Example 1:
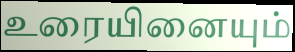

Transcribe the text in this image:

உரையினையும்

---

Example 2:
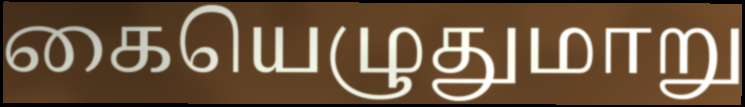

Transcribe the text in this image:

கையெழுதுமாறு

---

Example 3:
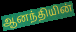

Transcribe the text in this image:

ஆனந்தியின்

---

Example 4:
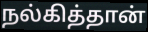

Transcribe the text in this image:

நல்கித்தான்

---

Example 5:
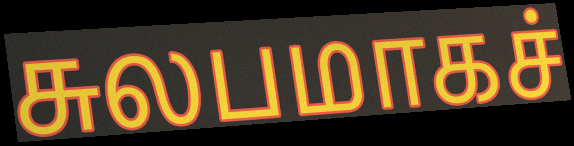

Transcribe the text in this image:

சுலபமாகச்